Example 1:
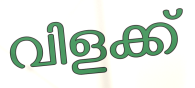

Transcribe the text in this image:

വിളക്ക്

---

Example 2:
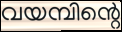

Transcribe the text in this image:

വയമ്പിന്റെ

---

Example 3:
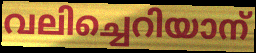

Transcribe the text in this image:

വലിച്ചെറിയാന്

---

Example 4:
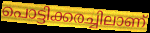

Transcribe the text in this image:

പൊട്ടിക്കരച്ചിലാണ്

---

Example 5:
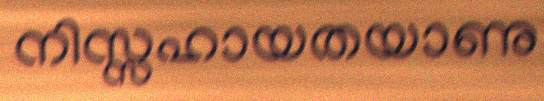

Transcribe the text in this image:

നിസ്സഹായതയാണു